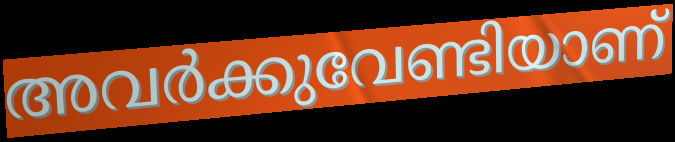
അവർക്കുവേണ്ടിയാണ്